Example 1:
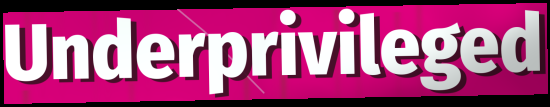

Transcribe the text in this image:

Underprivileged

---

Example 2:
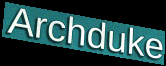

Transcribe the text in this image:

Archduke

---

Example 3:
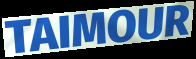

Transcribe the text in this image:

TAIMOUR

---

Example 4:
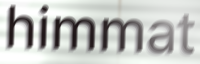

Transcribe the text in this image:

himmat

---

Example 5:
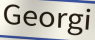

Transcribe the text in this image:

Georgi